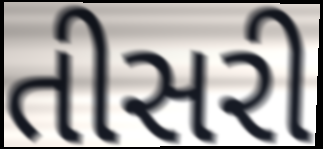
તીસરી